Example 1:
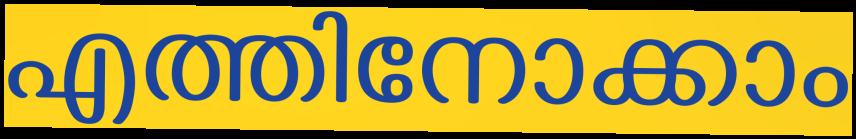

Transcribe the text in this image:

എത്തിനോക്കാം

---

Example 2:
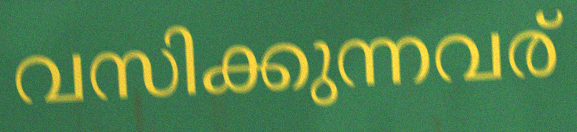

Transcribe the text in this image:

വസിക്കുന്നവര്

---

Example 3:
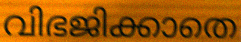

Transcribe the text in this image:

വിഭജിക്കാതെ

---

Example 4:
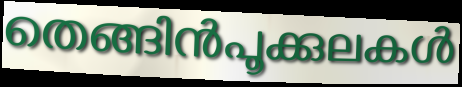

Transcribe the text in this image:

തെങ്ങിൻപൂക്കുലകൾ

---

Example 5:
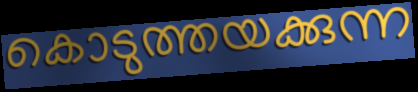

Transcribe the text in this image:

കൊടുത്തയക്കുന്ന